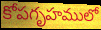
కోపగృహములో